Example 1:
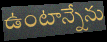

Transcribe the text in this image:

ఉంటాన్నేను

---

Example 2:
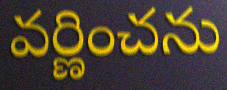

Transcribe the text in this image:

వర్ణించను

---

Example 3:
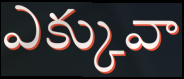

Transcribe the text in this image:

ఎక్కువా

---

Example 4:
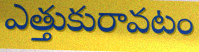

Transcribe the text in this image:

ఎత్తుకురావటం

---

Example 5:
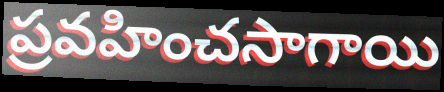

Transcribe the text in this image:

ప్రవహించసాగాయి